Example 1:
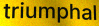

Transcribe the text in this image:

triumphal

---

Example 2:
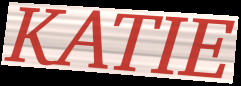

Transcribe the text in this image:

KATIE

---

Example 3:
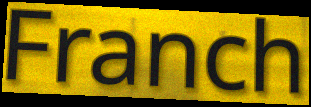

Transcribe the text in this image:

Franch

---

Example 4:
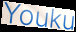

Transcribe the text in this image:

Youku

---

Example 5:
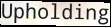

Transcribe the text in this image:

Upholding